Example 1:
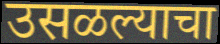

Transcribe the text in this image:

उसळल्याचा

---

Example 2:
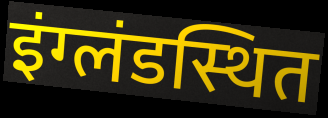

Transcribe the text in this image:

इंग्लंडस्थित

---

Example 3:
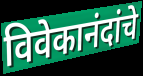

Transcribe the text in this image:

विवेकानंदांचे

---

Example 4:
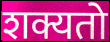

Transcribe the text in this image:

शक्यतो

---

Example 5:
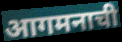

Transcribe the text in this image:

आगमनाची